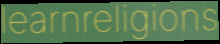
learnreligions